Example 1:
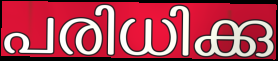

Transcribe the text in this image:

പരിധിക്കു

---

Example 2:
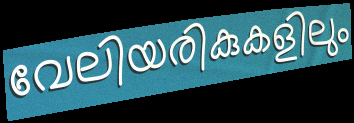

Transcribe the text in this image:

വേലിയരികുകളിലും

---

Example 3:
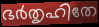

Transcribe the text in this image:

ഭർതൃഹിതേ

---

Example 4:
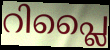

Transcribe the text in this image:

റിപ്ലൈ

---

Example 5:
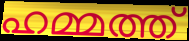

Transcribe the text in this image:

ഹമ്മത്ത്